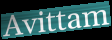
Avittam